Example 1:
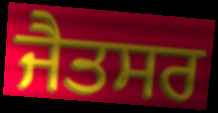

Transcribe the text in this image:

ਜੈਤਸਰ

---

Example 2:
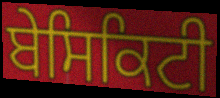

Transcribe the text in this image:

ਬੇਸਿਕਿਟੀ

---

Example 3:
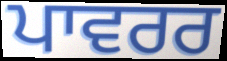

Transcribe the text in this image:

ਪਾਵਰਰ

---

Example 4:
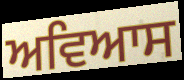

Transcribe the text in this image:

ਅਵਿਆਸ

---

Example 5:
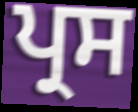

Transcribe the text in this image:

ਪ੍ਰਸ